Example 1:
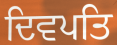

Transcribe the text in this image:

ਦਿਵਪਤਿ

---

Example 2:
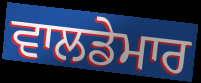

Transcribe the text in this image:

ਵਾਲਡੇਮਾਰ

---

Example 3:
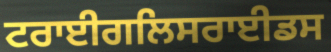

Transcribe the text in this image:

ਟਰਾਈਗਲਿਸਰਾਈਡਸ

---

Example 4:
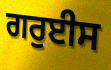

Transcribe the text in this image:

ਗਰੁਈਸ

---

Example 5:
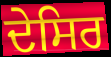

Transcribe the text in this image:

ਦੇਸਿਰ